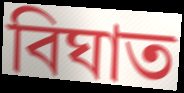
বিঘাত